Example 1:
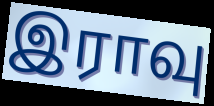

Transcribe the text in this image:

இராவு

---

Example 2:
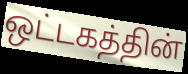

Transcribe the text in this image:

ஒட்டகத்தின்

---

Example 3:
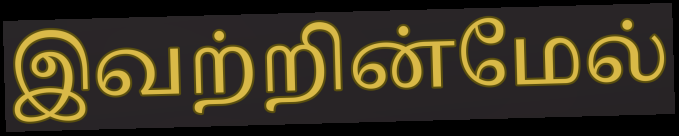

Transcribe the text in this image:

இவற்றின்மேல்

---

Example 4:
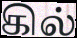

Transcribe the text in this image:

கில்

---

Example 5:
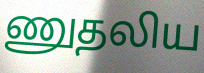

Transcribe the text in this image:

ணுதலிய